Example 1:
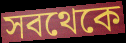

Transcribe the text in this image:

সবথেকে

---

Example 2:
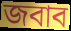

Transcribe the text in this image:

জবাব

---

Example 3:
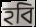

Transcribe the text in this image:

হবি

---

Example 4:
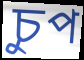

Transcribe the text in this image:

চুপ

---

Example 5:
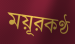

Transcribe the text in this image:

ময়ূরকণ্ঠ